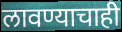
लावण्याचाही